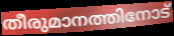
തീരുമാനത്തിനോട്